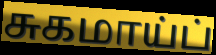
சுகமாய்ப்